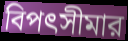
বিপৎসীমার